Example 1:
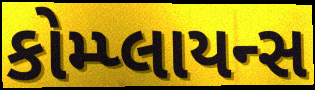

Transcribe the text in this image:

કોમ્પ્લાયન્સ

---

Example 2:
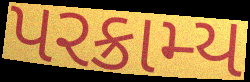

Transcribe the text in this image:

પરક્રામ્ય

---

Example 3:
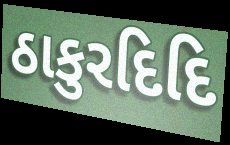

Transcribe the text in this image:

ઠાકુરદિદિ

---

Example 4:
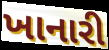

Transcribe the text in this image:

ખાનારી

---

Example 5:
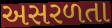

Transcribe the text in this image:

અસરળતા